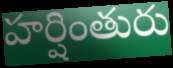
హర్షింతురు